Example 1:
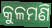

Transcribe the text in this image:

କୁଳମଣି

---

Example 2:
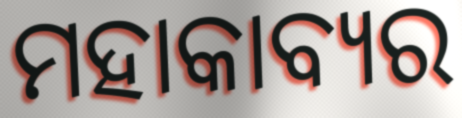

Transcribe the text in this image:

ମହାକାବ୍ୟର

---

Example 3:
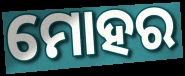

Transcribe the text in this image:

ମୋହର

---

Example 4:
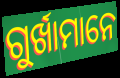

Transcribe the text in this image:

ଗୁର୍ଖାମାନେ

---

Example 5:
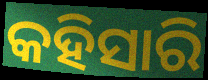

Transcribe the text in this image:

କହିସାରି